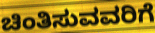
ಚಿಂತಿಸುವವರಿಗೆ